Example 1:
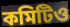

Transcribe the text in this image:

কমিটিও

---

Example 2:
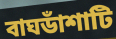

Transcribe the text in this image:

বাঘডাঁশাটি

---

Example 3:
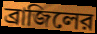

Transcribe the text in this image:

ব্রাজিলের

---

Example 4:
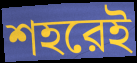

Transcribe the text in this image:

শহরেই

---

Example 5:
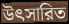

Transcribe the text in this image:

উৎসারিত